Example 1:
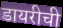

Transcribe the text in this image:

डायरीची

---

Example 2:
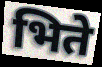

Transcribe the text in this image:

भिते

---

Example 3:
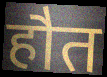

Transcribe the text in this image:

हौत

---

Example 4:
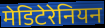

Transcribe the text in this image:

मेडिटेरेनियन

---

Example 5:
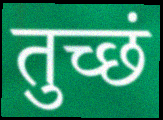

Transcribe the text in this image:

तुच्छं